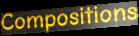
Compositions